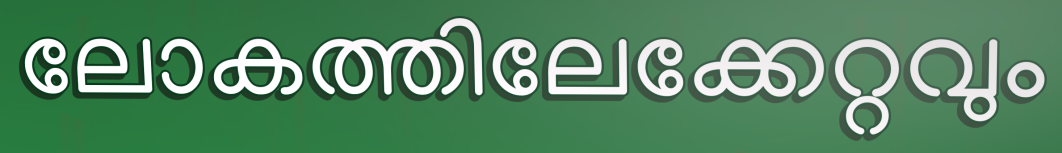
ലോകത്തിലേക്കേറ്റവും